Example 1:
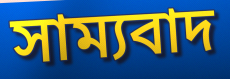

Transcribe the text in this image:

সাম্যবাদ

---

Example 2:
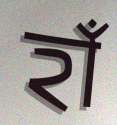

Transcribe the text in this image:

হাঁ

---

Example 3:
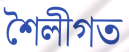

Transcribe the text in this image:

শৈলীগত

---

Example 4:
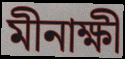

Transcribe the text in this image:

মীনাক্ষী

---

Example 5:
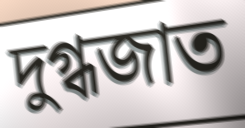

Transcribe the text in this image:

দুগ্ধজাত